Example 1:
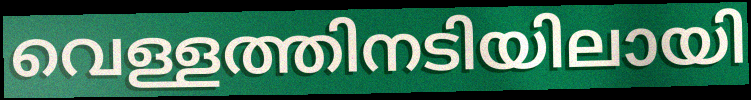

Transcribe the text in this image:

വെള്ളത്തിനടിയിലായി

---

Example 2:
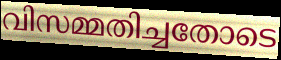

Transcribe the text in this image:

വിസമ്മതിച്ചതോടെ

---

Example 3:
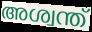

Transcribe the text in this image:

അശ്വന്ത്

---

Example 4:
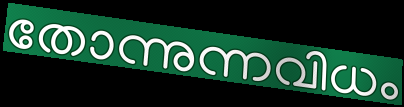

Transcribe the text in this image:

തോന്നുന്നവിധം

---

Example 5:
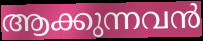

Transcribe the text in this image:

ആക്കുന്നവൻ